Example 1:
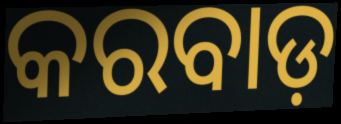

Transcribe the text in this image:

କରବାଡ଼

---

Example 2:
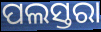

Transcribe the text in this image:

ପଲସ୍ତରା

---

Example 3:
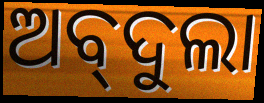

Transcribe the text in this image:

ଅବ୍‌ଦୁଲା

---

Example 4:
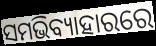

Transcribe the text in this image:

ସମଭିବ୍ୟାହାରରେ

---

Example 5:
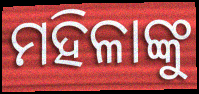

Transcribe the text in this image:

ମହିଳାଙ୍କୁ